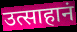
उत्साहानं